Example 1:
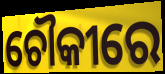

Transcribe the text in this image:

ଚୌକୀରେ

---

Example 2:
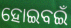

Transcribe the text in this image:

ହୋଇବଇଁ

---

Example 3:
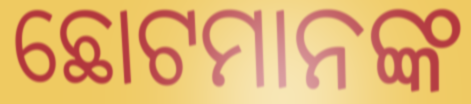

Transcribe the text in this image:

ଛୋଟମାନଙ୍କ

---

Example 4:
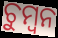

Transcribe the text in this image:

ଚୁମ୍ୱନ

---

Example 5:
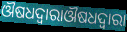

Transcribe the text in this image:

ଔଷଧଦ୍ଵାରାଔଷଧଦ୍ବାରା